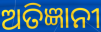
ଅତିଜ୍ଞାନୀ